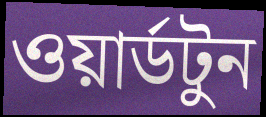
ওয়ার্ডটুন